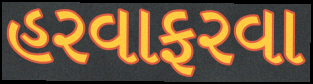
હરવાફરવા